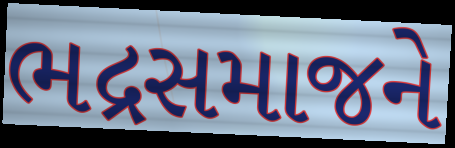
ભદ્રસમાજને